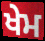
ਖੇਮ